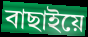
বাছাইয়ে